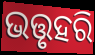
ଭତ୍ତୃହରି